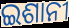
ଇଶାନୀ